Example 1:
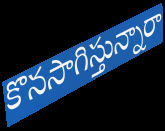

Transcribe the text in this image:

కొనసాగిస్తున్నారా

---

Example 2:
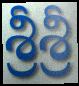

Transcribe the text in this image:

శ్రీశ్రీ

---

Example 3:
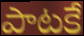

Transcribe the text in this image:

పాటకే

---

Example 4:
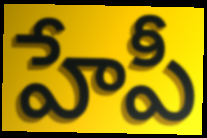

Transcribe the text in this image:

హేపీ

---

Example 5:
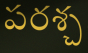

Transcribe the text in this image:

పరశ్చ